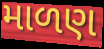
માળણ